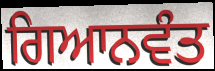
ਗਿਆਨਵੰਤ